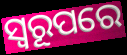
ସ୍ଵରୂପରେ